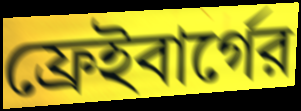
ফ্রেইবার্গের